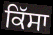
ਕਿੱਸਾ